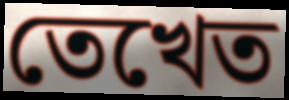
তেখেত